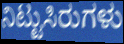
ನಿಟ್ಟುಸಿರುಗಳು